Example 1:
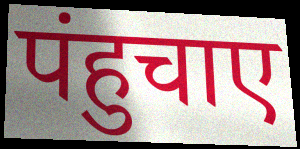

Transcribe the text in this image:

पंहुचाए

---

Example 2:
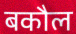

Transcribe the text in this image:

बकौल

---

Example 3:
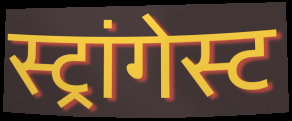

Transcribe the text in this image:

स्ट्रांगेस्ट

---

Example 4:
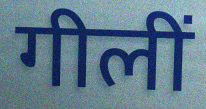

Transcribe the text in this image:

गीलीं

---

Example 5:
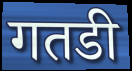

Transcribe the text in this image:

गतडी